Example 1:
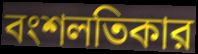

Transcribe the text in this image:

বংশলতিকার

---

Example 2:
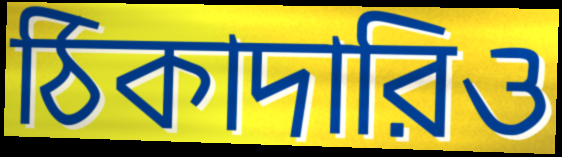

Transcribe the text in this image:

ঠিকাদারিও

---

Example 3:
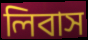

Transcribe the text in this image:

লিবাস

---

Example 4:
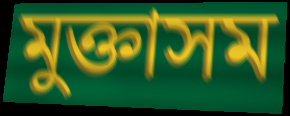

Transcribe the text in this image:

মুক্তাসম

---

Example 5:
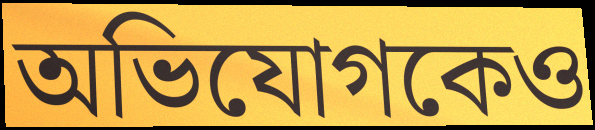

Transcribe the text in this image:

অভিযোগকেও